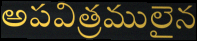
అపవిత్రములైన